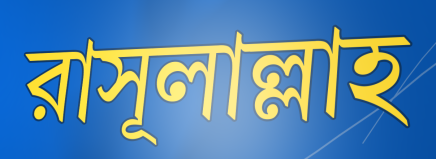
রাসূলাল্লাহ